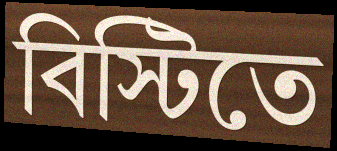
বিস্টিতে